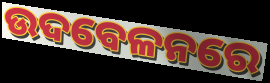
ଉଦବେଳନରେ